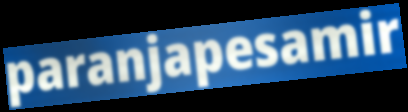
paranjapesamir